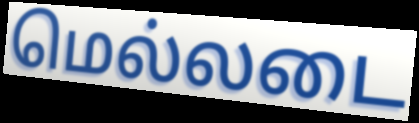
மெல்லடை